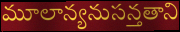
మూలాన్యనుసన్తతాని